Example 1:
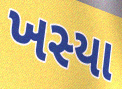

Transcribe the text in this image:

ખસ્યા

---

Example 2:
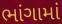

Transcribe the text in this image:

ભાંગામાં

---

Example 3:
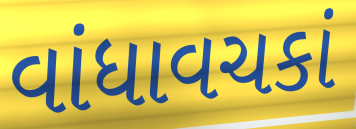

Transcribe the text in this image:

વાંધાવચકાં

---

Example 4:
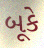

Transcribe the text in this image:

બૂકે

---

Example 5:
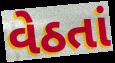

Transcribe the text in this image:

વેઠતાં